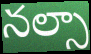
నల్సా